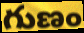
గుణం